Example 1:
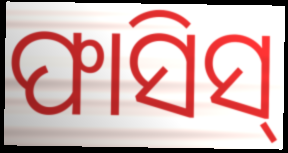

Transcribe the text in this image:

ଫାସିସ୍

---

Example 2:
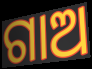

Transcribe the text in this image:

ଗାଅ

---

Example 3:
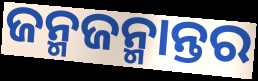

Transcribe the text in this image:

ଜନ୍ମଜନ୍ମାନ୍ତର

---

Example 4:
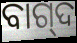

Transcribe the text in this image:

ବାଗ୍‌ଦ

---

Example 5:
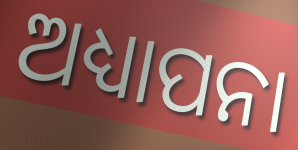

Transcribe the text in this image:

ଅଧ୍ଯାପନା